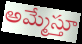
అమ్మేస్తూ